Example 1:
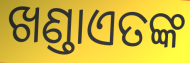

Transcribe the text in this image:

ଖଣ୍ଡାଏତଙ୍କ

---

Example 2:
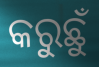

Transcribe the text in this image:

କରୁଛୁଁ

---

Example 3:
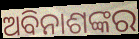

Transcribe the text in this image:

ଅବିନାଶଙ୍କର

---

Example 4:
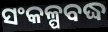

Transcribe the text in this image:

ସଂକଳ୍ପବଦ୍ଧ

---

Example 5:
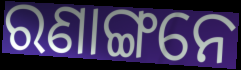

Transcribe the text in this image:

ରଣାଙ୍ଗନେ